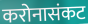
करोनासंकट